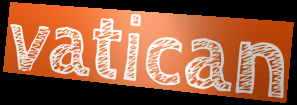
vatican